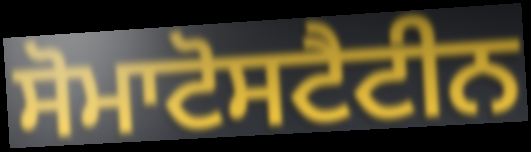
ਸੋਮਾਟੋਸਟੈਟੀਨ